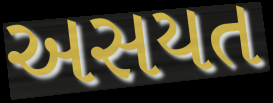
અસયત